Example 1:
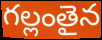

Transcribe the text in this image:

గల్లంతైన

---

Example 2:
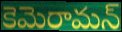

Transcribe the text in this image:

కెమెరామన్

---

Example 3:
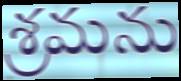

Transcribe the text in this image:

శ్రమను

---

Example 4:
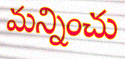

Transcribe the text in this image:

మన్నించు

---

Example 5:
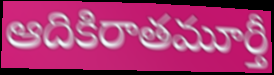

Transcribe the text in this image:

ఆదికిరాతమూర్తీ